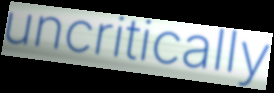
uncritically